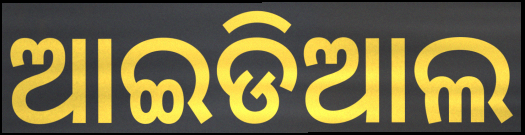
ଆଇଡିଆଲ